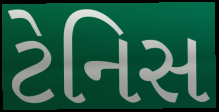
ટેનિસ